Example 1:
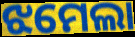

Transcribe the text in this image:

ଝମେଲା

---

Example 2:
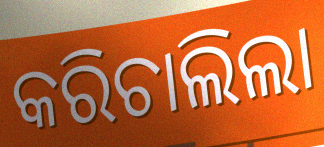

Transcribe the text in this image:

କରିଚାଲିଲା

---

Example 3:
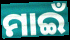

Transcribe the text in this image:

ମାଇଁ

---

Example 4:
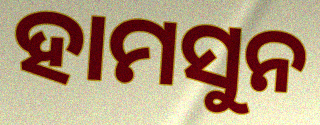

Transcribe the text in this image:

ହାମସୁନ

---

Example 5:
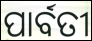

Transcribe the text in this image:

ପାର୍ବତୀ